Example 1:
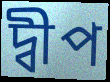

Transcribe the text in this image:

দ্বীপ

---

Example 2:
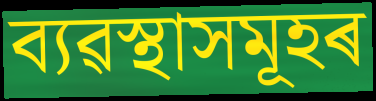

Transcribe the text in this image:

ব্যৱস্থাসমূহৰ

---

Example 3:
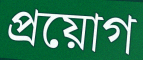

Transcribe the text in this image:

প্ৰয়োগ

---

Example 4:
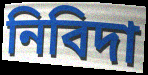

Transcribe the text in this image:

নিবিদা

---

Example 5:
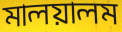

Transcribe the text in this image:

মালয়ালম